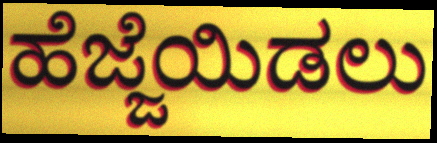
ಹೆಜ್ಜೆಯಿಡಲು